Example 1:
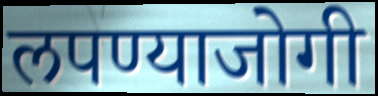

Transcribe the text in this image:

लपण्याजोगी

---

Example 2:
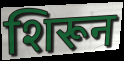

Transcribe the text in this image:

शिरून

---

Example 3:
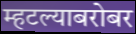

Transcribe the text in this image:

म्हटल्याबरोबर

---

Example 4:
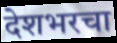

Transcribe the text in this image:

देशभरचा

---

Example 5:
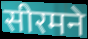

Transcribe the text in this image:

सीरमने